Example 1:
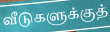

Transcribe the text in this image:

வீடுகளுக்குத்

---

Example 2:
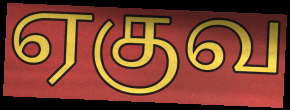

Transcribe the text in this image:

ஏகுவ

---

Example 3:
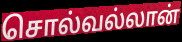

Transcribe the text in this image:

சொல்வல்லான்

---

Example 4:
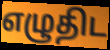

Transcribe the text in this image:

எழுதிட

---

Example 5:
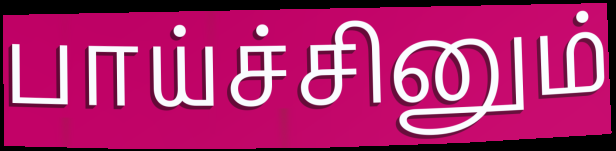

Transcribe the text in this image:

பாய்ச்சினும்